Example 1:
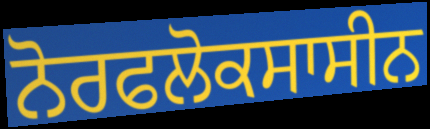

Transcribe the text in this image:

ਨੋਰਫਲੋਕਸਾਸੀਨ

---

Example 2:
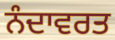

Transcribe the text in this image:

ਨੰਦਾਵਰਤ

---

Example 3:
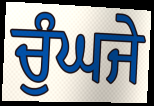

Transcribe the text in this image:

ਚੁੰਘਜੇ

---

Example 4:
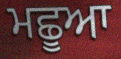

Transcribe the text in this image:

ਮਛੂਆ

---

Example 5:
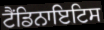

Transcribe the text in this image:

ਟੈਂਡਿਨਾਇਟਿਸ